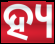
ହ୍ୟ